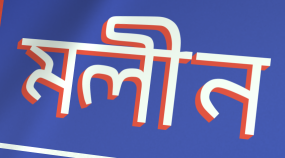
মলীন